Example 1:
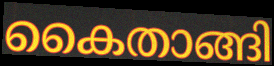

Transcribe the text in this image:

കൈതാങ്ങി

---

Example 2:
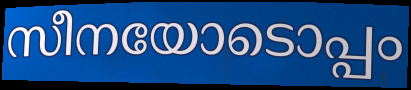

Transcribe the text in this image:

സീനയോടൊപ്പം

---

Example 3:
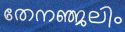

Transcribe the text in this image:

തേനഞ്ജലിം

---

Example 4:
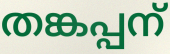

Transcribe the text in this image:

തങ്കപ്പന്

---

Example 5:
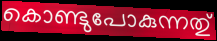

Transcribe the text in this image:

കൊണ്ടുപോകുന്നതു്